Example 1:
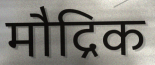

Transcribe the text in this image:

मौद्रिक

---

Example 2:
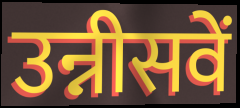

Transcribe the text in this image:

उन्नीसवें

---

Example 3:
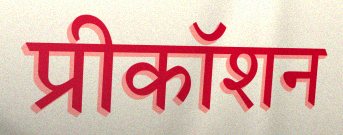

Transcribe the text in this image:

प्रीकॉशन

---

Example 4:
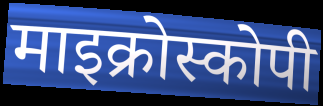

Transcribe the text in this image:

माइक्रोस्कोपी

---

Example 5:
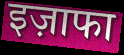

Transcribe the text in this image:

इज़ाफा